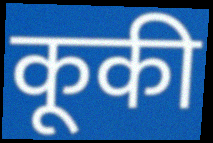
कूकी